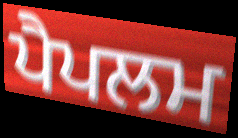
ਪੈਪਲਮ